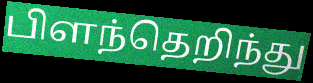
பிளந்தெறிந்து